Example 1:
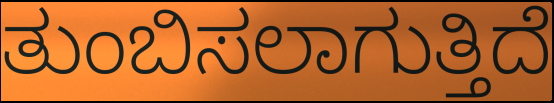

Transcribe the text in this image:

ತುಂಬಿಸಲಾಗುತ್ತಿದೆ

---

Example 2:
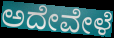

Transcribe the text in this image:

ಅದೇವೇಳೆ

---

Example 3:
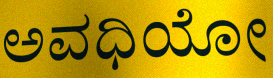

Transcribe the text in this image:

ಅವಧಿಯೋ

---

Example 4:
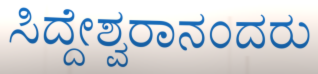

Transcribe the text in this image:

ಸಿದ್ದೇಶ್ವರಾನಂದರು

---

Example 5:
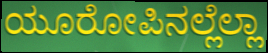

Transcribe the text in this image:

ಯೂರೋಪಿನಲ್ಲೆಲ್ಲಾ